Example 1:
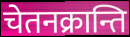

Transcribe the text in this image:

चेतनक्रान्ति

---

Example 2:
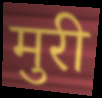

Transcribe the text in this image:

मुरी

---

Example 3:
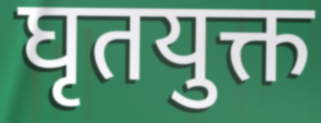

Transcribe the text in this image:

घृतयुक्त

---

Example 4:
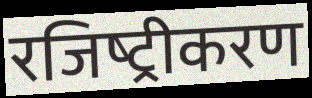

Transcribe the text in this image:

रजिष्ट्रीकरण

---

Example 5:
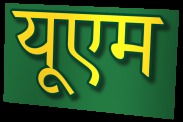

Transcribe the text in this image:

यूएम